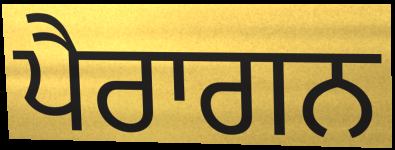
ਪੈਰਾਗਨ